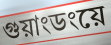
গুয়াংডংয়ে